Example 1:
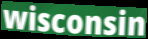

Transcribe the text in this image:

wisconsin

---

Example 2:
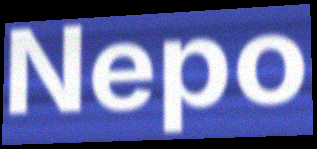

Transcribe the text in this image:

Nepo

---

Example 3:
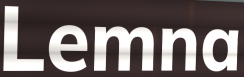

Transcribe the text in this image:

Lemna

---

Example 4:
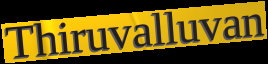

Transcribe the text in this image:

Thiruvalluvan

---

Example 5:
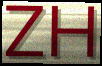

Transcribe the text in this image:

ZH